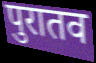
पुरातव